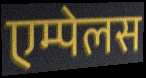
एम्पेलस